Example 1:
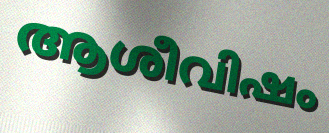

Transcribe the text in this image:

ആശീവിഷം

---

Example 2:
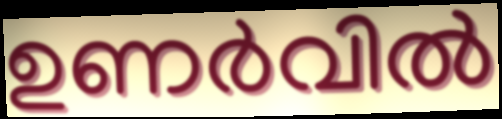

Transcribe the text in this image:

ഉണർവിൽ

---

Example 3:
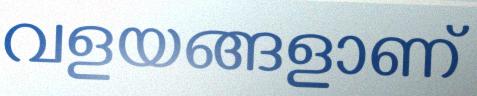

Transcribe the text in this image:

വളയങ്ങളാണ്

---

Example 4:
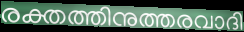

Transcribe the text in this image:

രക്തത്തിനുത്തരവാദി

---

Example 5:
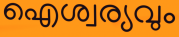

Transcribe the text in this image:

ഐശ്വര്യവും